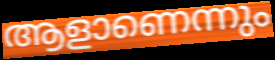
ആളാണെന്നും